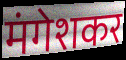
मंगेशकर